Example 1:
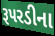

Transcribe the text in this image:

રૂપરડીના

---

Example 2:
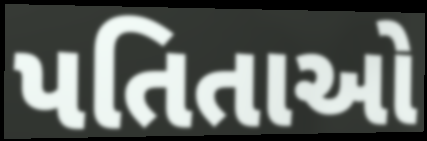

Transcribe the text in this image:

પતિતાઓ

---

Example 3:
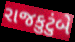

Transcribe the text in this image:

રાજકુટુંબે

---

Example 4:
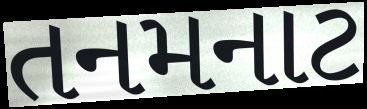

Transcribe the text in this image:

તનમનાટ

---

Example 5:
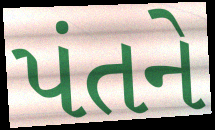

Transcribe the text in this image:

પંતને